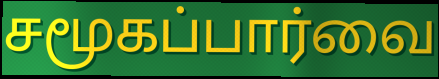
சமூகப்பார்வை